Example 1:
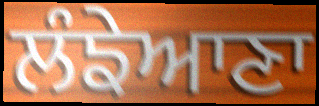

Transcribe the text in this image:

ਲੰਙੇਆਣਾ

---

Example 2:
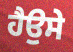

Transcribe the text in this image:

ਹੈਉਸੇ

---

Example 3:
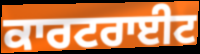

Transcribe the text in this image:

ਕਾਰਟਰਾਈਟ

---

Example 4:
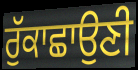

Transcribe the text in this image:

ਰੁੱਕਾਛਾਉਣੀ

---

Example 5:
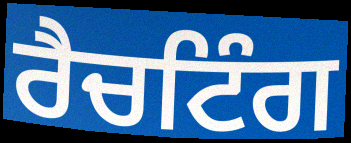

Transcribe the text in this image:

ਰੈਚਟਿੰਗ